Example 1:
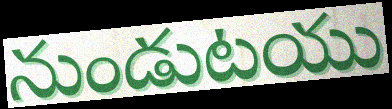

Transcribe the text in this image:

నుండుటయు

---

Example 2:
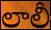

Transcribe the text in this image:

లాలీ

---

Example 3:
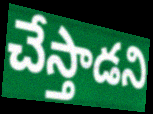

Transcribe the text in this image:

చేస్తాడని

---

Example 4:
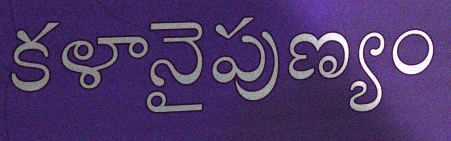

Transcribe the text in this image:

కళానైపుణ్యం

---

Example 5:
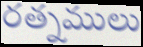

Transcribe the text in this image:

రత్నములు